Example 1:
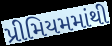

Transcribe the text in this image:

પ્રીમિયમમાંથી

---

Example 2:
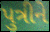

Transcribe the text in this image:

પુત્રીને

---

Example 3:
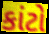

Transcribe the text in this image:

કાંટો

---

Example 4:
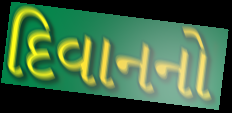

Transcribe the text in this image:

દિવાનનો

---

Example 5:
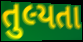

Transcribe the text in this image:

તુલ્યતા